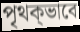
পৃথক্ভাবে